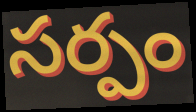
సర్పం